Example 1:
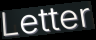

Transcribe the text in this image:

Letter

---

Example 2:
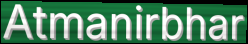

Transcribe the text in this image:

Atmanirbhar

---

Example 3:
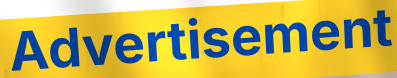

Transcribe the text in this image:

Advertisement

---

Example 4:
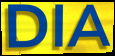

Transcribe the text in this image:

DIA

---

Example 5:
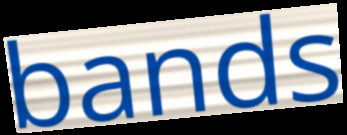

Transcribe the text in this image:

bands